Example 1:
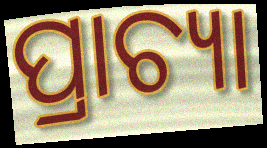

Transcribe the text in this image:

ପ୍ରାଚ୍ୟା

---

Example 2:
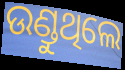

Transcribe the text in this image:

ଉଣ୍ଡୁଥିଲେ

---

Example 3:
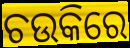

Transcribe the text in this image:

ଚଉକିରେ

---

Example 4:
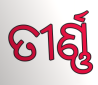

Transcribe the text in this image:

ତୀର୍ଣ୍ଣ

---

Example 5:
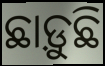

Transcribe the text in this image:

ଛାଡ଼ୁଛି